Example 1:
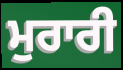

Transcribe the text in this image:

ਮੁਰਾਰੀ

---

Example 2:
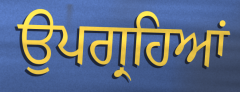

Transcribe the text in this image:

ਉਪਗ੍ਰਹਿਆਂ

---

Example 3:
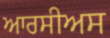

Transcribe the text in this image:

ਆਰਸੀਅਸ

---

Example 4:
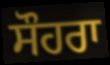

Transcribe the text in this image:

ਸੌਹਰਾ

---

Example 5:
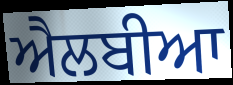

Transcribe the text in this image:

ਐਲਬੀਆ